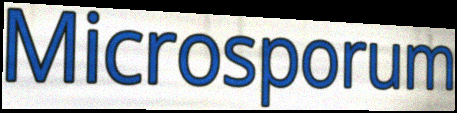
Microsporum